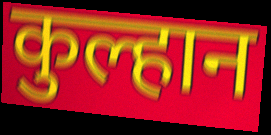
कुल्हान